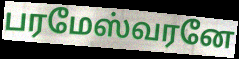
பரமேஸ்வரனே